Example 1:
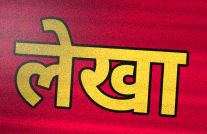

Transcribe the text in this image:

लेखा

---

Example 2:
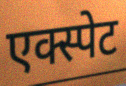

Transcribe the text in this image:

एक्स्पेट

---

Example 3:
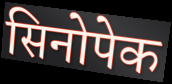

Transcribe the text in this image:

सिनोपेक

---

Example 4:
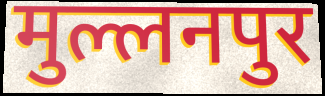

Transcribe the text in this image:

मुल्लनपुर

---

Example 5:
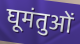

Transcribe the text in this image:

घूमंतुओं